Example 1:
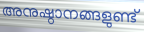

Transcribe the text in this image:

അനുഷ്ഠാനങ്ങളുണ്ട്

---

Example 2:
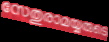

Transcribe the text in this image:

സേതുരാമയ്യരുടെ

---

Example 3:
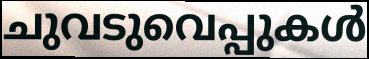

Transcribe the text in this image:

ചുവടുവെപ്പുകൾ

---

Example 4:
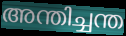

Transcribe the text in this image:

അന്തിച്ചന്ത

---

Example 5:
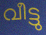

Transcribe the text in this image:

വീട്ടു